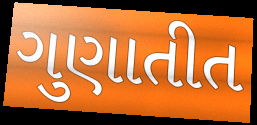
ગુણાતીત